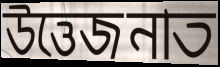
উত্তেজনাত